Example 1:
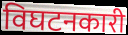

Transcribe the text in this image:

विघटनकारी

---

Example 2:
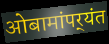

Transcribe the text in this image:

ओबामांपर्यंत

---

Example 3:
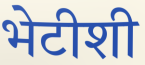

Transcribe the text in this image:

भेटीशी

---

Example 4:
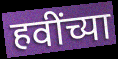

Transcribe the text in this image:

हवींच्या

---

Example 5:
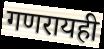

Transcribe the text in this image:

गणरायही